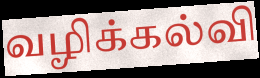
வழிக்கல்வி